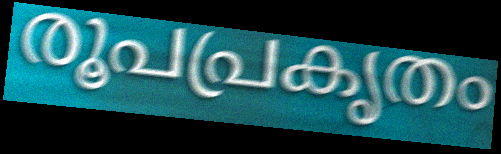
രൂപപ്രകൃതം